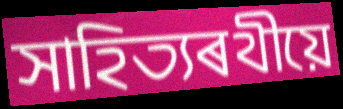
সাহিত্যৰথীয়ে